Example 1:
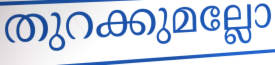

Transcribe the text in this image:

തുറക്കുമല്ലോ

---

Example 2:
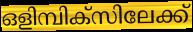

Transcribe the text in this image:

ഒളിമ്പിക്സിലേക്ക്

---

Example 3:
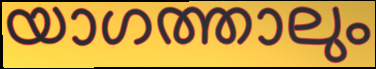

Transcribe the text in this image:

യാഗത്താലും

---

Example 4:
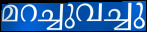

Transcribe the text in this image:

മറച്ചുവച്ചു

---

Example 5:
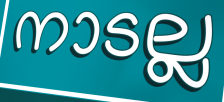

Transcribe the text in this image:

നാടല്ല